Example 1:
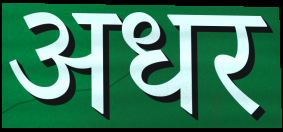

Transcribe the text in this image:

अधर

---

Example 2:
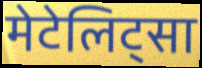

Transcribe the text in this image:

मेटेलिट्सा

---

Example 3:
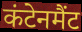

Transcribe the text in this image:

कंटेनमैंट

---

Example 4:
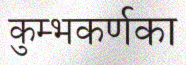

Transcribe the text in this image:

कुम्भकर्णका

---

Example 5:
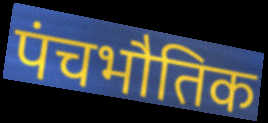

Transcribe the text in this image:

पंचभौतिक